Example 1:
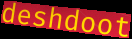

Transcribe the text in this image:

deshdoot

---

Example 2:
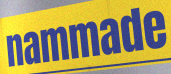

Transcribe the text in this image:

nammade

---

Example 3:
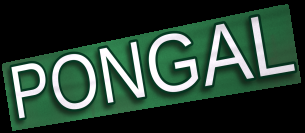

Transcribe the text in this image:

PONGAL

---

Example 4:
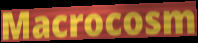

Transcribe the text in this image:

Macrocosm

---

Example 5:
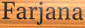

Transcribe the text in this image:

Farjana